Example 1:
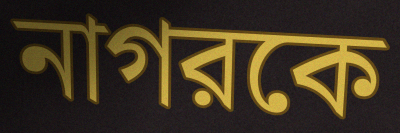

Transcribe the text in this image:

নাগরকে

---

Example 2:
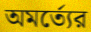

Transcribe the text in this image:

অমর্ত্যের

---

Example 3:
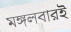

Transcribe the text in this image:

মঙ্গলবারই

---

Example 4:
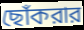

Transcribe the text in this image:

ছোঁকরার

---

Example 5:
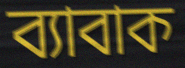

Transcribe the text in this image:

ব্যাবাক